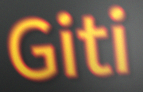
Giti